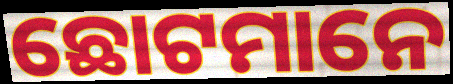
ଛୋଟମାନେ